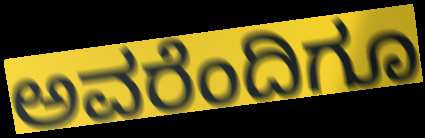
ಅವರೆಂದಿಗೂ